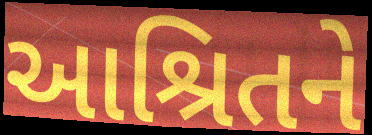
આશ્રિતને